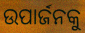
ଉପାର୍ଜନକୁ